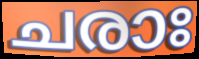
ചരാഃ